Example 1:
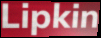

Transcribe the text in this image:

Lipkin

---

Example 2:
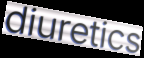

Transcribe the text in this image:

diuretics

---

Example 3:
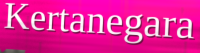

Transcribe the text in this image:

Kertanegara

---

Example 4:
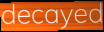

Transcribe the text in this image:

decayed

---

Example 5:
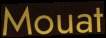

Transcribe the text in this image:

Mouat